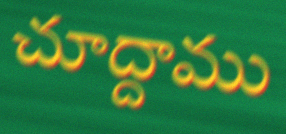
చూద్దాము